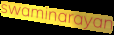
swaminarayan